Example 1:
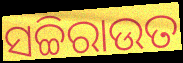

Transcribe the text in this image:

ସଚ୍ଚିରାଉତ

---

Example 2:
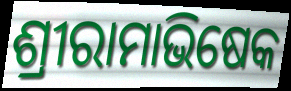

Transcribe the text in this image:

ଶ୍ରୀରାମାଭିଷେକ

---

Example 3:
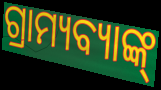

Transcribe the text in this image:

ଗ୍ରାମ୍ୟବ୍ୟାଙ୍କ୍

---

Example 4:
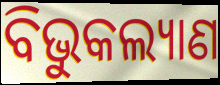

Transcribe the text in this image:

ବିଭୁକଲ୍ୟାଣ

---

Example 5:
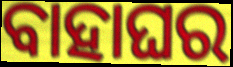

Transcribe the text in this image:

ବାହାଘର